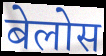
बेलोस